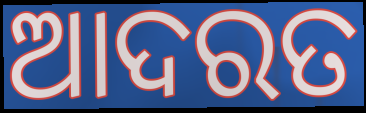
ଆଦରତ